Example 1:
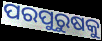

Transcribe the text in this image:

ପରପୁରୁଷକୁ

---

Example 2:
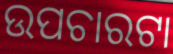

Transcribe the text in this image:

ଉପଚାରଟା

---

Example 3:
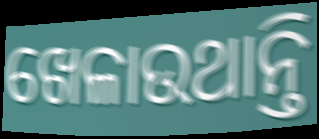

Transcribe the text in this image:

ଖେଳାଉଥାନ୍ତି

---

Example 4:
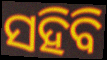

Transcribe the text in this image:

ସହିବି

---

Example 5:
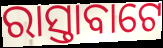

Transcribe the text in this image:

ରାସ୍ତାବାଟେ